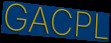
GACPL